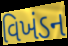
વિખંડન